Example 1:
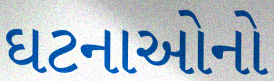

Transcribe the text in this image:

ઘટનાઓનો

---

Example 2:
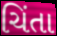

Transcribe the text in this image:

ચિંતા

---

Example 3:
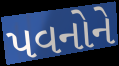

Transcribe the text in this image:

પવનોને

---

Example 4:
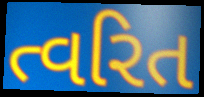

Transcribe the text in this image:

ત્વરિત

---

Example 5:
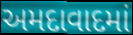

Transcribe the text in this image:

અમદાવાદમાં